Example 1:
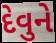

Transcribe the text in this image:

દેવુને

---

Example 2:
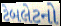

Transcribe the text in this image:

ટેબલેટનો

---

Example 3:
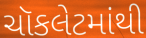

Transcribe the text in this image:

ચૉકલેટમાંથી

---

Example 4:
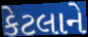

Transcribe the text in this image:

કેટલાને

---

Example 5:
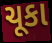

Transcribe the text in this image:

ચૂકા